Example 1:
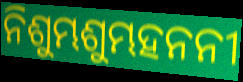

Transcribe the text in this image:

ନିଶୁମ୍ଭଶୁମ୍ଭହନନୀ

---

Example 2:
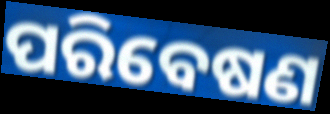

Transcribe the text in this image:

ପରିବେଷଣ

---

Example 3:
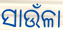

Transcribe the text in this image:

ସାଉଁଳା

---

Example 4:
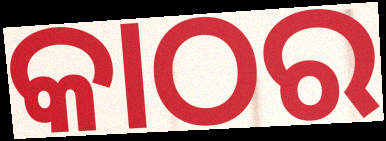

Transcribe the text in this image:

କାଠର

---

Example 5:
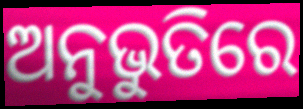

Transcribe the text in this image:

ଅନୁଭୁତିରେ